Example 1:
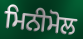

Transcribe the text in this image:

ਮਿਨੀਮੋਲ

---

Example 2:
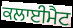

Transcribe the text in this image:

ਕਲਾਈਮੈਟ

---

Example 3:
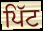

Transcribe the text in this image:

ਪਿੱਟ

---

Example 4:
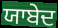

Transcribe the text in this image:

ਯਾਬੇਦ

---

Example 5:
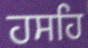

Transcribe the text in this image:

ਹਸਹਿ